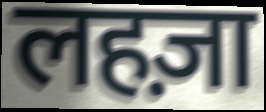
लहज़ा